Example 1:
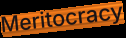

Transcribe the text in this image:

Meritocracy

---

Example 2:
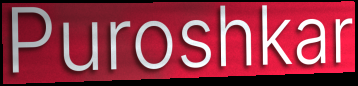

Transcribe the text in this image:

Puroshkar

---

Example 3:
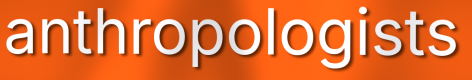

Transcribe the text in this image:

anthropologists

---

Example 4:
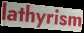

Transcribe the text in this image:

lathyrism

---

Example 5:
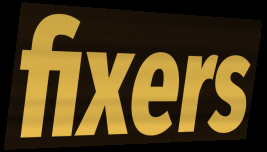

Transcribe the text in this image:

fixers